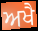
ਅਖੈ